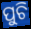
ପୁଚି